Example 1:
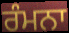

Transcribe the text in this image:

ਰੰਮਨਾ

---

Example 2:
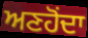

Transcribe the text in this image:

ਅਣਹੋਂਦਾ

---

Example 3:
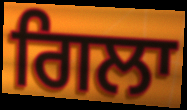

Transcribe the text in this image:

ਗਿਲਾ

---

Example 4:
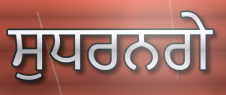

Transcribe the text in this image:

ਸੁਧਰਨਗੇ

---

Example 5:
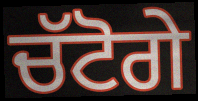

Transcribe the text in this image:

ਚੱਟੋਗੇ